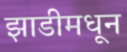
झाडीमधून